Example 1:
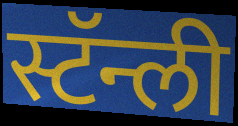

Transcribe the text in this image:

स्टॅन्ली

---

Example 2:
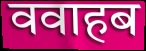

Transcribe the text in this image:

ववाहब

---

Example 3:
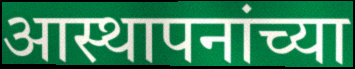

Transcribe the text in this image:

आस्थापनांच्या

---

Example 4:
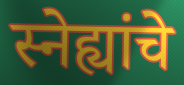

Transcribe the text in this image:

स्नेह्यांचे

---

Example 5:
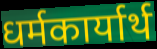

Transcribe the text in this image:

धर्मकार्यार्थ